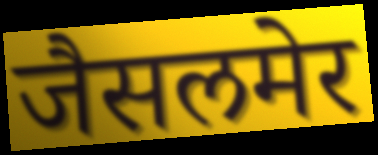
जैसलमेर